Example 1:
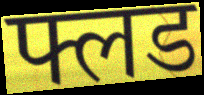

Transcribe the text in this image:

फ्लड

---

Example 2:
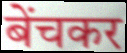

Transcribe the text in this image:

बेंचकर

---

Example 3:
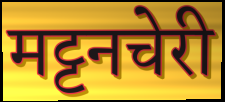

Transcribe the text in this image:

मट्टनचेरी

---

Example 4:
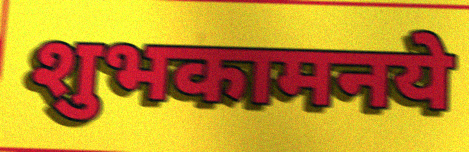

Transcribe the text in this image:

शुभकामनये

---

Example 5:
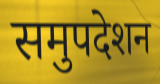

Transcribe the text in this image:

समुपदेशन